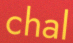
chal